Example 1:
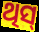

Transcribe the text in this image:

ଥିସ୍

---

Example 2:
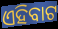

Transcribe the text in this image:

ଏହିବାଟ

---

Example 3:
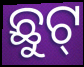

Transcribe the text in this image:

ଛୁଟ୍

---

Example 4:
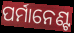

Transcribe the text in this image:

ପର୍ମାନେଣ୍ଟ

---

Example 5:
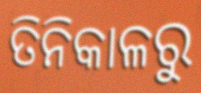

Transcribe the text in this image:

ତିନିକାଳରୁ